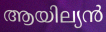
ആയില്യൻ